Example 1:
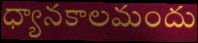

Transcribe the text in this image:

ధ్యానకాలమందు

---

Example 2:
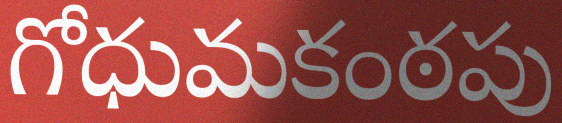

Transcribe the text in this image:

గోధుమకంఠపు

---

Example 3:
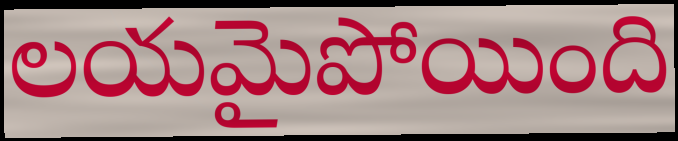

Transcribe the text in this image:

లయమైపోయింది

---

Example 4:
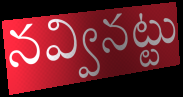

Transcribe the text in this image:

నవ్వినట్టు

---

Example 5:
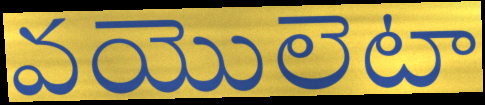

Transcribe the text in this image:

వయొలెటా